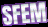
SFEM